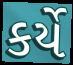
કર્યે